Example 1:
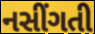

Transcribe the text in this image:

નસીંગતી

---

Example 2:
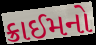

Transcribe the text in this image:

ક્રાઈમનો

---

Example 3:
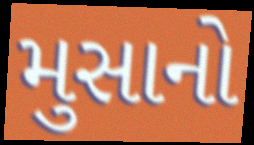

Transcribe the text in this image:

મુસાનો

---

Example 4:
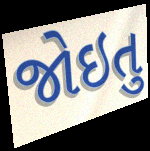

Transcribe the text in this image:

જોઇતુ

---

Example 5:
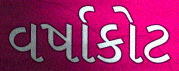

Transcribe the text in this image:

વર્ષાકોટ